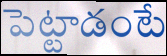
పెట్టాడంటే